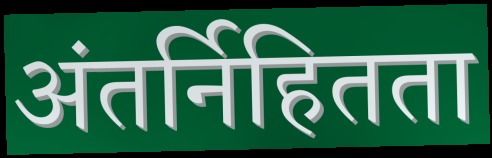
अंतर्निहितता